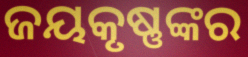
ଜୟକୃଷ୍ଣଙ୍କର